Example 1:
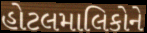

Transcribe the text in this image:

હોટલમાલિકોને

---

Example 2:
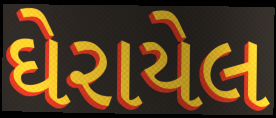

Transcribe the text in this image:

ઘેરાયેલ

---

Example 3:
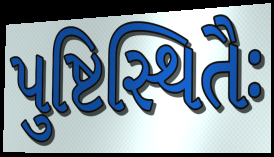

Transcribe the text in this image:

પુષ્ટિસ્થિતૈઃ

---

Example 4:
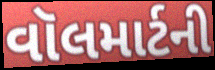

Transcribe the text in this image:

વૉલમાર્ટની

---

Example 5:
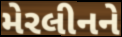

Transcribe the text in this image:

મેરલીનને